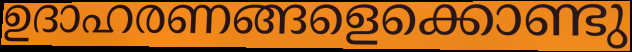
ഉദാഹരണങ്ങളെക്കൊണ്ടു